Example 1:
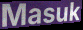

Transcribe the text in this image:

Masuk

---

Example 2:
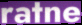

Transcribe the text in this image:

ratne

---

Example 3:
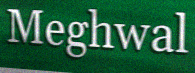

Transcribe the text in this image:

Meghwal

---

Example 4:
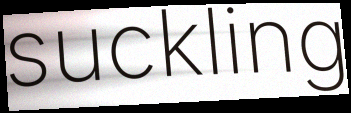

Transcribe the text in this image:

suckling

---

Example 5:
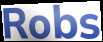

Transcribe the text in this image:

Robs